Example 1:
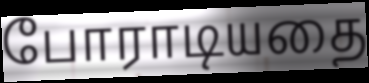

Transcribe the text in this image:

போராடியதை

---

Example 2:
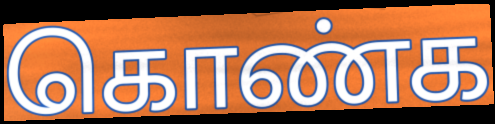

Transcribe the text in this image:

கொண்க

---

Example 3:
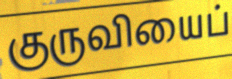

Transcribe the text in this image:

குருவியைப்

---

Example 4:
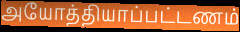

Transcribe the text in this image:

அயோத்தியாப்பட்டணம்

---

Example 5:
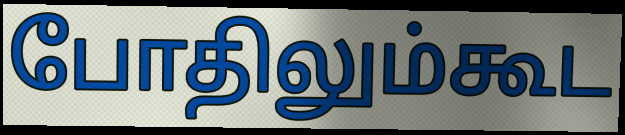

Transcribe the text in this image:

போதிலும்கூட